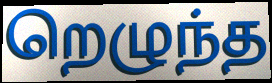
றெழுந்த